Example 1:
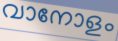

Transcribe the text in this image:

വാനോളം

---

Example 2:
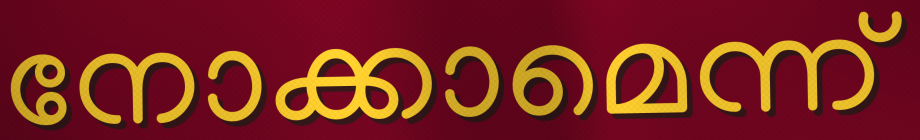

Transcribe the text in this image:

നോക്കാമെന്ന്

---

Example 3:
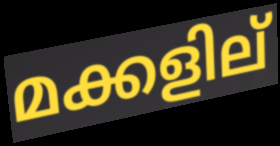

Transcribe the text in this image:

മക്കളില്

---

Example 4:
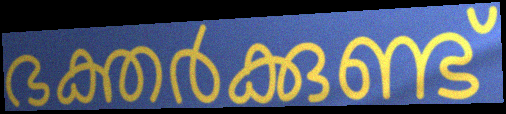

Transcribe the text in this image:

ഭക്തർക്കുണ്ട്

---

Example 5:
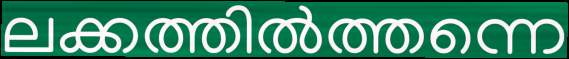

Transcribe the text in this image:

ലക്കത്തിൽത്തന്നെ